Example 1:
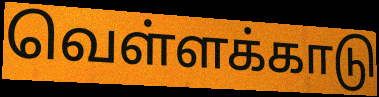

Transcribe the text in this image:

வெள்ளக்காடு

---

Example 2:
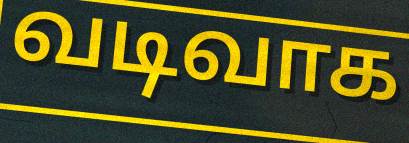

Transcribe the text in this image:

வடிவாக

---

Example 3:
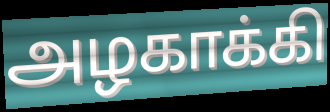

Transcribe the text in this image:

அழகாக்கி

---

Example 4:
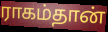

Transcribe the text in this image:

ராகம்தான்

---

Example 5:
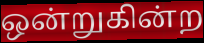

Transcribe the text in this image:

ஒன்றுகின்ற